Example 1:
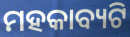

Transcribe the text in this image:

ମହକାବ୍ୟଟି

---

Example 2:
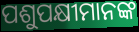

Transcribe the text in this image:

ପଶୁପକ୍ଷୀମାନଙ୍କ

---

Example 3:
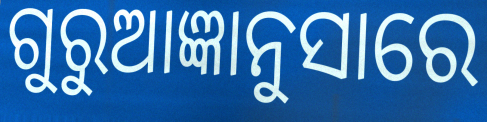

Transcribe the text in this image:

ଗୁରୁଆଜ୍ଞାନୁସାରେ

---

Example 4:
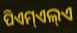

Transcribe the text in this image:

ପିଏମ୍ଏଲ୍ଏ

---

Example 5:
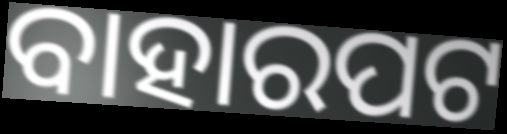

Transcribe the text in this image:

ବାହାରପଟ